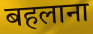
बहलाना